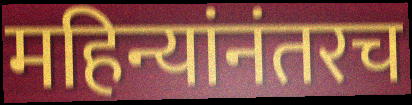
महिन्यांनंतरच